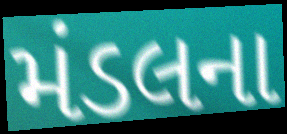
મંડલના